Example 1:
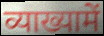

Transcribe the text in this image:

व्याख्यामें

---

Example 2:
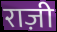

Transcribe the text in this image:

राज़ी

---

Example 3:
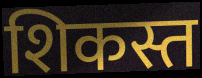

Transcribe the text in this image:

शिकस्त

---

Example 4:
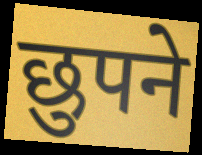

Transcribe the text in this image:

छुपने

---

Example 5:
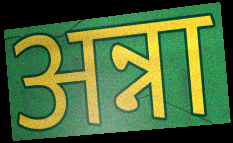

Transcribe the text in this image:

अन्ना